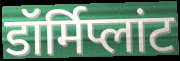
डॉर्मिप्लांट